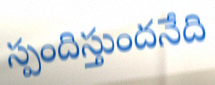
స్పందిస్తుందనేది